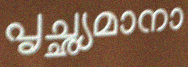
പൃച്ഛ്യമാനാ